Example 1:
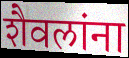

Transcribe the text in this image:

शैवलांना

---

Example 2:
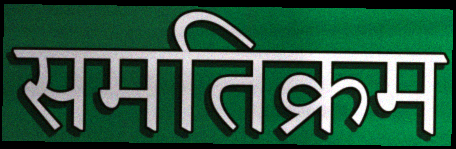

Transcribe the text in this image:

समतिक्रम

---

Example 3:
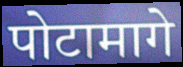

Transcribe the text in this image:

पोटामागे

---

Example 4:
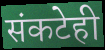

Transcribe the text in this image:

संकटेही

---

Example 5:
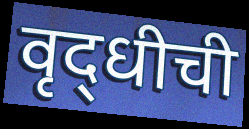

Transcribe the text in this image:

वृद्धीची